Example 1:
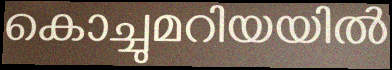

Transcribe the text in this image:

കൊച്ചുമറിയയിൽ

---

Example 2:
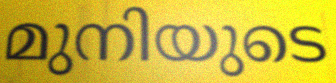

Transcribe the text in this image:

മുനിയുടെ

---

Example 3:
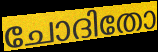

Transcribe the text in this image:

ചോദിതോ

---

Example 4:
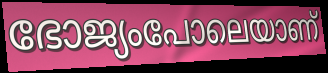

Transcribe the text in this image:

ഭോജ്യംപോലെയാണ്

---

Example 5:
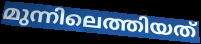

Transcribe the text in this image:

മുന്നിലെത്തിയത്